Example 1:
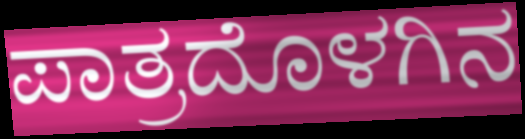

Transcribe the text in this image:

ಪಾತ್ರದೊಳಗಿನ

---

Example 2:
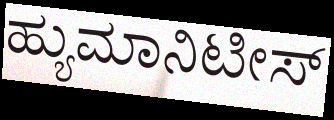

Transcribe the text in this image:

ಹ್ಯುಮಾನಿಟೀಸ್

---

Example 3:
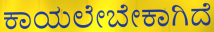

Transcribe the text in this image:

ಕಾಯಲೇಬೇಕಾಗಿದೆ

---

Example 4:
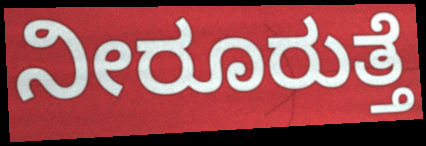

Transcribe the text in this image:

ನೀರೂರುತ್ತೆ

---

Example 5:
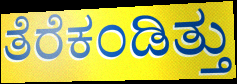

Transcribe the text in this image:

ತೆರೆಕಂಡಿತ್ತು